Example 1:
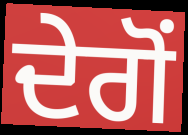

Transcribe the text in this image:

ਦੇਗੋਂ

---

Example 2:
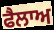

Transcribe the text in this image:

ਫੈਲਾਅ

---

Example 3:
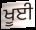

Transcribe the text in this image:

ਖੂਈ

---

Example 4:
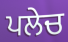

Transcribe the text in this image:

ਪਲੇਚ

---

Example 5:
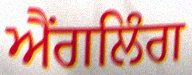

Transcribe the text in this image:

ਐਂਗਲਿੰਗ